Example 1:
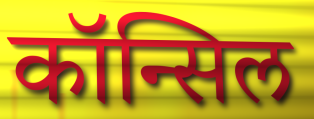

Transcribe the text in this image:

कॉन्सिल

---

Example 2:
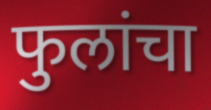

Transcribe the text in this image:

फुलांचा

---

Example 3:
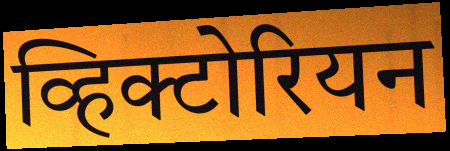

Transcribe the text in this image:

व्हिक्टोरियन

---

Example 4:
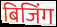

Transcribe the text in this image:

बिजिंग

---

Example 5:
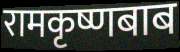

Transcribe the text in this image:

रामकृष्णबाब